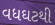
વધઘટથી